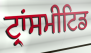
ਟ੍ਰਾਂਸਮੀਟਿਡ